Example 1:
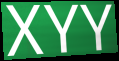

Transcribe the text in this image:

XYY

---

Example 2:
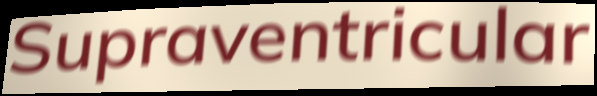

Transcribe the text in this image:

Supraventricular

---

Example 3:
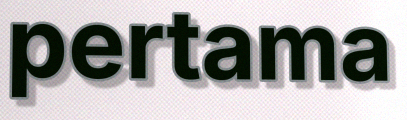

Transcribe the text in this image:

pertama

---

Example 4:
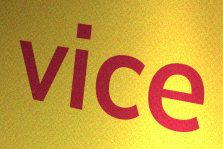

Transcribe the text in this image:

vice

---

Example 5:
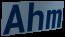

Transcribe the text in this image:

Ahm